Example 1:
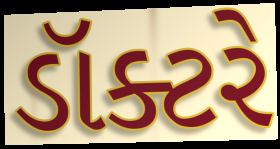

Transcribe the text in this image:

ડૉક્ટરે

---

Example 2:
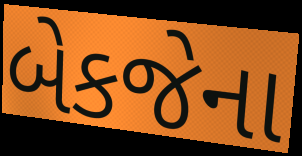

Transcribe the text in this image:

બેકજેના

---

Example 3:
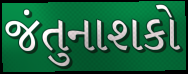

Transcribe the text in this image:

જંતુનાશકો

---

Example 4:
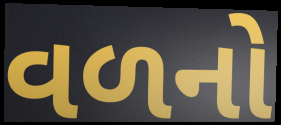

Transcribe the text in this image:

વળનો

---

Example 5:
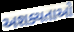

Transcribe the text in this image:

અશક્યતાઓ